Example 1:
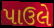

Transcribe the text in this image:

પાઉલે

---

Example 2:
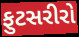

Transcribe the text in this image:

ફુટસરીરો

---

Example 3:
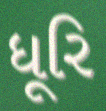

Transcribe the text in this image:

ધૂરિ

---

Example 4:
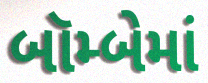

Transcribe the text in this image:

બૉમ્બેમાં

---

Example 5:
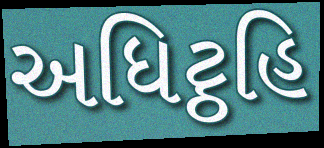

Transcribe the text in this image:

અધિટ્ઠહિ